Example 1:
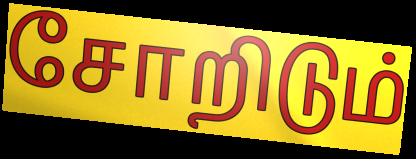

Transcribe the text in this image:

சோறிடும்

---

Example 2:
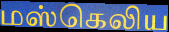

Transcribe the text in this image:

மஸ்கெலிய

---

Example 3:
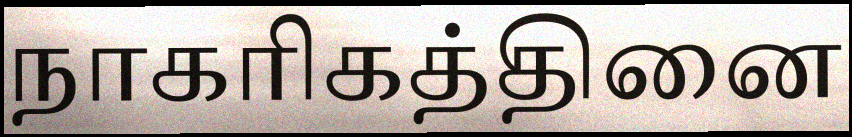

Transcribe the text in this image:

நாகரிகத்தினை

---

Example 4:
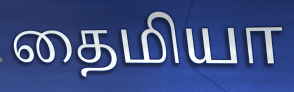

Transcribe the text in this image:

தைமியா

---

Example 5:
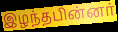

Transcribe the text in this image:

இழந்தபின்னர்